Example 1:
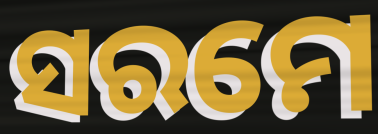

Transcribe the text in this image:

ସରମେ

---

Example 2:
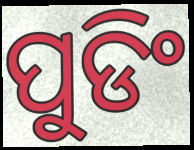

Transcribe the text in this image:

ପୁଡିଂ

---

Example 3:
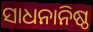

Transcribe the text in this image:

ସାଧନାନିଷ୍ଠ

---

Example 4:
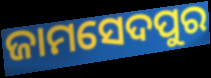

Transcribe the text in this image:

ଜାମସେଦପୁର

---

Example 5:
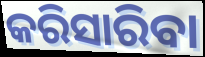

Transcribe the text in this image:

କରିସାରିବା